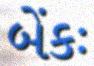
બેંકઃ